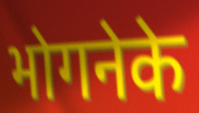
भोगनेके